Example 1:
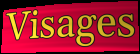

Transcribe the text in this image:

Visages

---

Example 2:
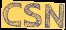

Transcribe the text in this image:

CSN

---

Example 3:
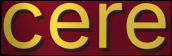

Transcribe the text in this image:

cere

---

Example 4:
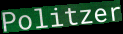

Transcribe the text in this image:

Politzer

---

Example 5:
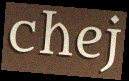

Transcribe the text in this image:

chej